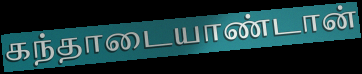
கந்தாடையாண்டான்